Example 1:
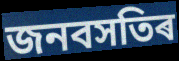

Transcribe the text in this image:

জনবসতিৰ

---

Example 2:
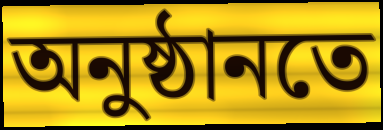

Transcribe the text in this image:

অনুষ্ঠানতে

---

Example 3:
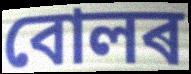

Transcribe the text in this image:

বোলৰ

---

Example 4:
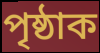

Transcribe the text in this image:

পৃষ্ঠাক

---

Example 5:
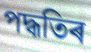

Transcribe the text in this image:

পদ্ধতিৰ